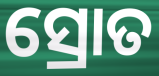
ସ୍ରୋତ